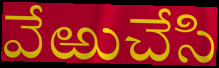
వేఱుచేసి